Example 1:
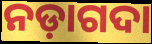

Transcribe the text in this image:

ନଡ଼ାଗଦା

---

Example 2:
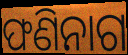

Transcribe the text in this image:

ଫଣିନାଗ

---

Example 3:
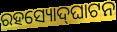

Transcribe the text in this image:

ରହସ୍ୟୋଦ୍‍ଘାଟନ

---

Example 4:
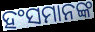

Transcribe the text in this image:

ହଂସମାନଙ୍କ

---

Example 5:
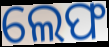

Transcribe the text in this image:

ଲେଫ